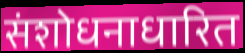
संशोधनाधारित